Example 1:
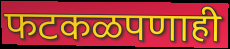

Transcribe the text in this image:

फटकळपणाही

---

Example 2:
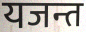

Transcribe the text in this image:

यजन्त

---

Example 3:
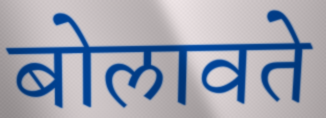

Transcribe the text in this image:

बोलावते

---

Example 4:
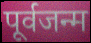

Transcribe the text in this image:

पूर्वजन्म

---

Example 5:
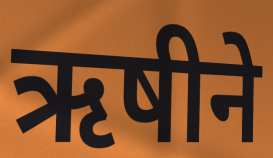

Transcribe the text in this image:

ऋषीने